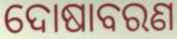
ଦୋଷାବରଣ